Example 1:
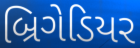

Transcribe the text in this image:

બ્રિગેડિયર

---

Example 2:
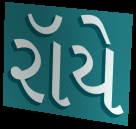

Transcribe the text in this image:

રૉયે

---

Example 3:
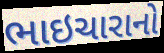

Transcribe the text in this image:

ભાઇચારાનો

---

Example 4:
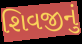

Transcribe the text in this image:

શિવજીનું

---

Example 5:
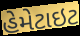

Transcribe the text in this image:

હેમેટાઇટ